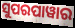
ସୁପରପାୱାର